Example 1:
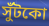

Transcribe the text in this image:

সুঁটকো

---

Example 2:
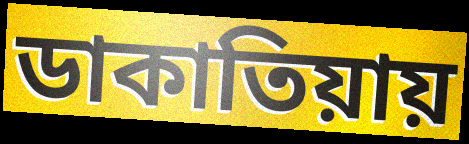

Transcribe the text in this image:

ডাকাতিয়ায়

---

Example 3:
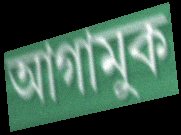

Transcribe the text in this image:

আগামুক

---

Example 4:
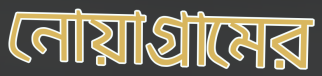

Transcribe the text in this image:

নোয়াগ্রামের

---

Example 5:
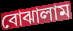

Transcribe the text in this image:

বোঝালাম